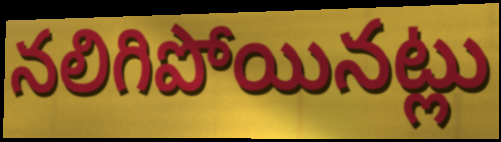
నలిగిపోయినట్లు